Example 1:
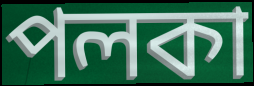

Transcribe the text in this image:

পলকা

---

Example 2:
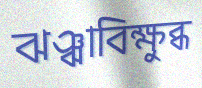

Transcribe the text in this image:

ঝঞ্ঝাবিক্ষুব্ধ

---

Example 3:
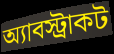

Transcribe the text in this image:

অ্যাবস্ট্রাকট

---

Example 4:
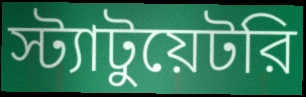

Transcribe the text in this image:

স্ট্যাটুয়েটরি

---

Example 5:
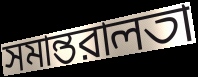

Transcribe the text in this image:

সমান্তরালতা